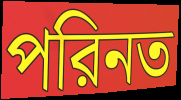
পরিনত